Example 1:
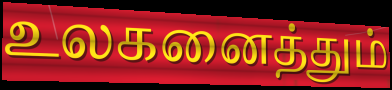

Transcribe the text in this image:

உலகனைத்தும்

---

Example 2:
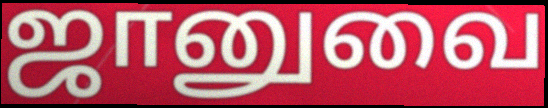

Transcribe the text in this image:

ஜானுவை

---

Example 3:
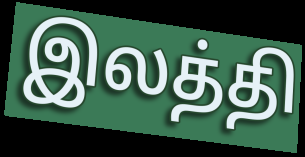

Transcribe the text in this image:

இலத்தி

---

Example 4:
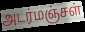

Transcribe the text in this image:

அடர்மஞ்சள்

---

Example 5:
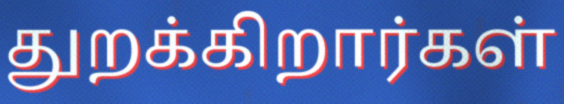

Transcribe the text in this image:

துறக்கிறார்கள்